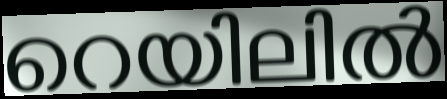
റെയിലിൽ